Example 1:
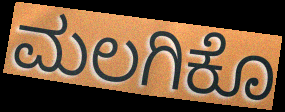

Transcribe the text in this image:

ಮಲಗಿಕೊ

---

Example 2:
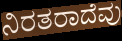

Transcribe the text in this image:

ನಿರತರಾದೆವು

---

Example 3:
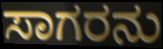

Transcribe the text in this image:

ಸಾಗರನು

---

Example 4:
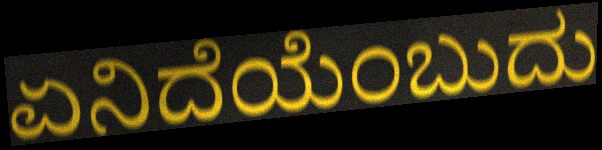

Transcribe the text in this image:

ಏನಿದೆಯೆಂಬುದು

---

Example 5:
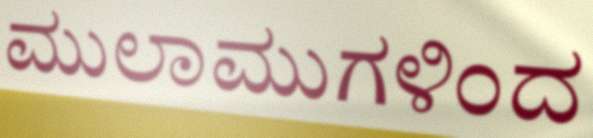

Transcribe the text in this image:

ಮುಲಾಮುಗಳಿಂದ